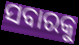
ସବାରକୁ